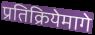
प्रतिक्रियेमागे